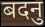
बदनु